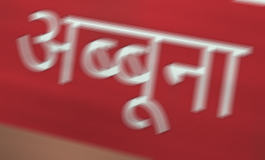
अब्बूना